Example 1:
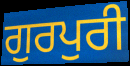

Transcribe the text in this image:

ਗੁਰਪੁਰੀ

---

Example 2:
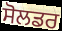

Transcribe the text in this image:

ਸੋਲਡਰ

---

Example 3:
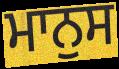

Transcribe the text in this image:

ਮਾਨੁਸ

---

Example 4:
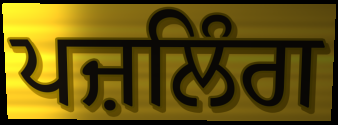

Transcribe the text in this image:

ਪਜ਼ਲਿੰਗ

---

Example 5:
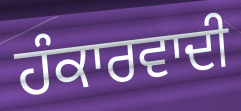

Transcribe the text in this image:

ਹੰਕਾਰਵਾਦੀ